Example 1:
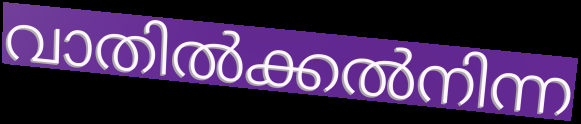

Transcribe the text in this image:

വാതിൽക്കൽനിന്ന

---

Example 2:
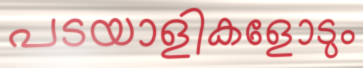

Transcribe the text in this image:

പടയാളികളോടും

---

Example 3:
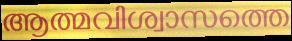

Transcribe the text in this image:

ആത്മവിശ്വാസത്തെ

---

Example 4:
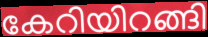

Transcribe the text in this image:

കേറിയിറങ്ങി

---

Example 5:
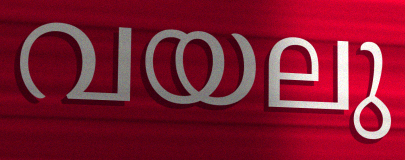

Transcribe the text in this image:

വയലു